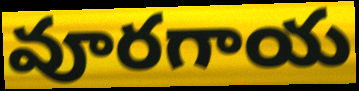
వూరగాయ